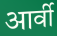
आर्वी